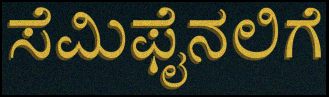
ಸೆಮಿಫೈನಲಿಗೆ